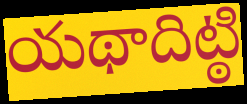
యథాదిట్ఠి